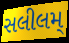
સલીલમ્